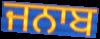
ਜਨਾਬ